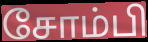
சோம்பி